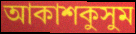
আকাশকুসুম